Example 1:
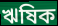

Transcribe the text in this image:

ঋষিক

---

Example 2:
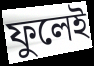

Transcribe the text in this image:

ফুলেই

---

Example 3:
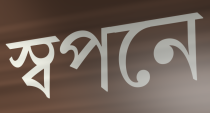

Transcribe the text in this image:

স্বপনে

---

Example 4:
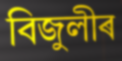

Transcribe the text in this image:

বিজুলীৰ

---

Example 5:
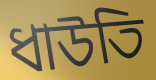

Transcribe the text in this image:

ধাউতি